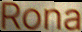
Rona